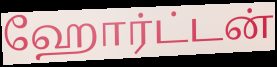
ஹோர்ட்டன்